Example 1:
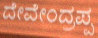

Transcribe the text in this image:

ದೇವೇಂದ್ರಪ್ಪ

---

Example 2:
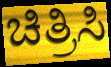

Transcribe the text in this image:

ಚಿತ್ರಿಸಿ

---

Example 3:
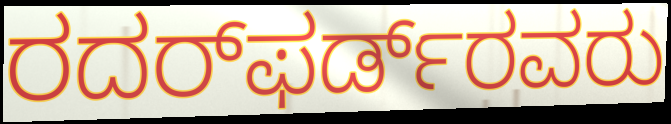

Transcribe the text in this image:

ರದರ್‌ಫರ್ಡ್‌ರವರು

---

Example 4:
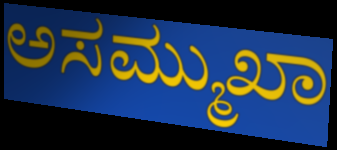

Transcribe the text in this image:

ಅಸಮ್ಮುಖಾ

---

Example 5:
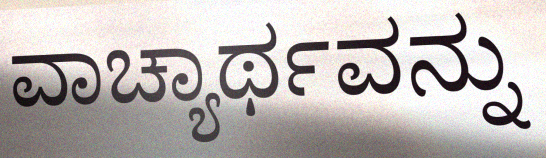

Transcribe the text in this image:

ವಾಚ್ಯಾರ್ಥವನ್ನು